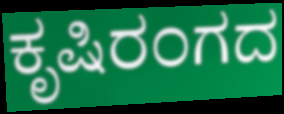
ಕೃಷಿರಂಗದ